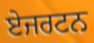
ਏਜਰਟਨ